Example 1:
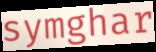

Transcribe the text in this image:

symghar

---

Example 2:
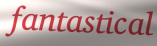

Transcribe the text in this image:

fantastical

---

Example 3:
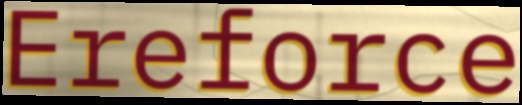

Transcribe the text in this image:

Ereforce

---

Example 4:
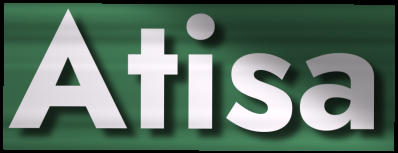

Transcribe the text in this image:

Atisa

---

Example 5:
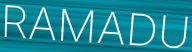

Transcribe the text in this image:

RAMADU